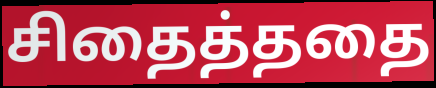
சிதைத்ததை